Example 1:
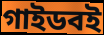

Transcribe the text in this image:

গাইডবই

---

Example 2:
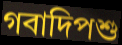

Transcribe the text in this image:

গবাদিপশু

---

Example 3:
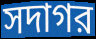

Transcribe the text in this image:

সদাগর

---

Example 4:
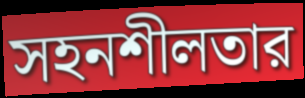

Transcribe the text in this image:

সহনশীলতার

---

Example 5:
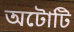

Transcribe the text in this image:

অটোটি